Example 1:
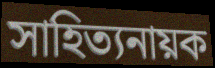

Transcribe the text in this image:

সাহিত্যনায়ক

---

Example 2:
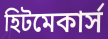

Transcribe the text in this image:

হিটমেকার্স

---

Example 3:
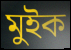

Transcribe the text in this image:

মুইক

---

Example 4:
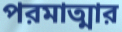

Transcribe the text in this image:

পরমাত্মার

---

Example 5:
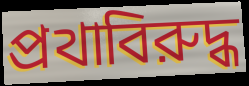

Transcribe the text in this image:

প্রথাবিরুদ্ধ